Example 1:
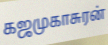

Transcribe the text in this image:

கஜமுகாசுரன்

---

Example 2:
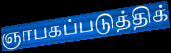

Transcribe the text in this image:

ஞாபகப்படுத்திக்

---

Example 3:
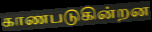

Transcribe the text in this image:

காணபடுகின்றன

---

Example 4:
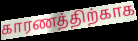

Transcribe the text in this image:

காரணத்திற்காக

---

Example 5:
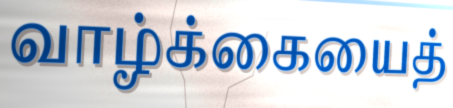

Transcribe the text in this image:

வாழ்க்கையைத்